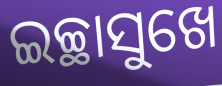
ଇଚ୍ଛାସୁଖେ